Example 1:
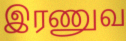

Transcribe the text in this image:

இரணுவ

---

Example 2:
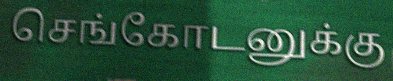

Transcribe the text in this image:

செங்கோடனுக்கு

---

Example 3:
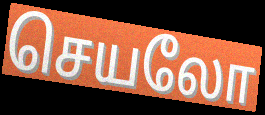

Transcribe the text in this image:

செயலோ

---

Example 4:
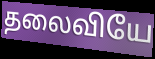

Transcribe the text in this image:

தலைவியே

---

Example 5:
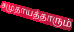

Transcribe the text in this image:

சமுதாயத்தாரும்